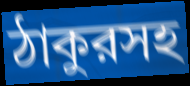
ঠাকুরসহ